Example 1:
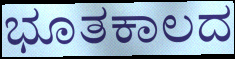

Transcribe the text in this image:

ಭೂತಕಾಲದ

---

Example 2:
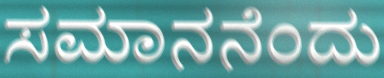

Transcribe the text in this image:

ಸಮಾನನೆಂದು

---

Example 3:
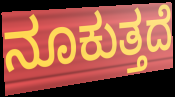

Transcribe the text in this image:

ನೂಕುತ್ತದೆ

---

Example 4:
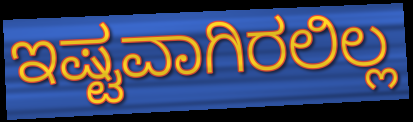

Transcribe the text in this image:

ಇಷ್ಟವಾಗಿರಲಿಲ್ಲ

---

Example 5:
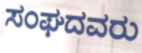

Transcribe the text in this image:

ಸಂಘದವರು